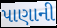
પાણાની